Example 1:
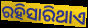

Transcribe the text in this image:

ରହିସାରିଥାଏ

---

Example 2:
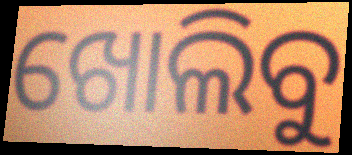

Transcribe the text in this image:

ଖୋଲିବୁ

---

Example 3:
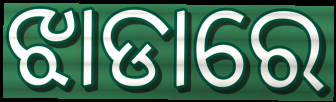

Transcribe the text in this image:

ଝାଡାରେ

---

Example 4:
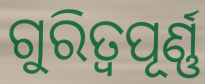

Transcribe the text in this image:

ଗୁରିତ୍ୱପୂର୍ଣ୍ଣ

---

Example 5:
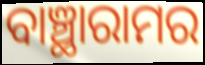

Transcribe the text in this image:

ବାଞ୍ଛାରାମର